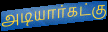
அடியார்கட்கு